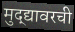
मुद्द्यावरची